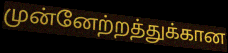
முன்னேற்றத்துக்கான